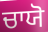
ਚਾਯੋ